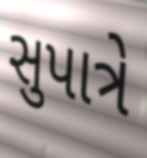
સુપાત્રે